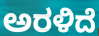
ಅರಳಿದೆ